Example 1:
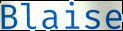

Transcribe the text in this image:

Blaise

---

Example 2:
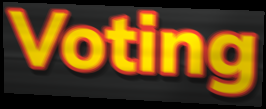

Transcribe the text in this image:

Voting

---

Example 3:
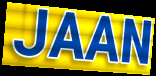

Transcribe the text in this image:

JAAN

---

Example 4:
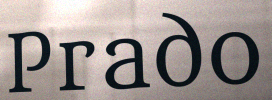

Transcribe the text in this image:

Prado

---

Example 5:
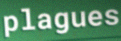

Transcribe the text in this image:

plagues